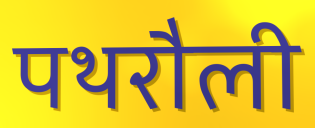
पथरौली